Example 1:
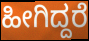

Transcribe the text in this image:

ಹೀಗಿದ್ದರೆ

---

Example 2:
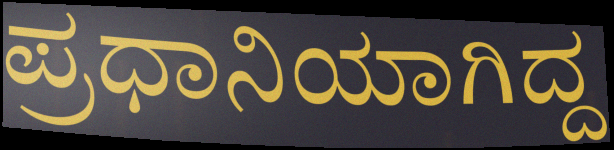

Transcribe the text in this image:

ಪ್ರಧಾನಿಯಾಗಿದ್ದ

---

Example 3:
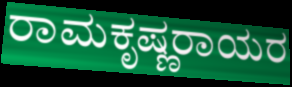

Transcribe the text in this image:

ರಾಮಕೃಷ್ಣರಾಯರ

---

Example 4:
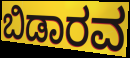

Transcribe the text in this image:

ಬಿಡಾರವ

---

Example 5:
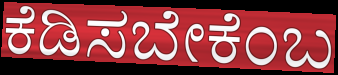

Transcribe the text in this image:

ಕೆಡಿಸಬೇಕೆಂಬ